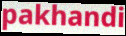
pakhandi